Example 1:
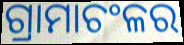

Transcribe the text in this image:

ଗ୍ରାମାଚଂଳର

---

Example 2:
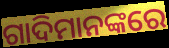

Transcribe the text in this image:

ଗାଦିମାନଙ୍କରେ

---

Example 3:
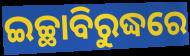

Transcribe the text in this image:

ଇଚ୍ଛାବିରୁଦ୍ଧରେ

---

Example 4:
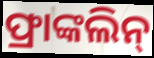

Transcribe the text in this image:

ଫ୍ରାଙ୍କଲିନ୍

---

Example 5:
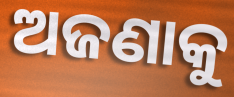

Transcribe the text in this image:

ଅଜଣାକୁ